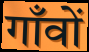
गाँवों